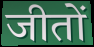
जीतों